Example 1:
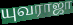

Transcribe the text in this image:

யுவராஜா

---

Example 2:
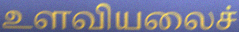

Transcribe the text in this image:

உளவியலைச்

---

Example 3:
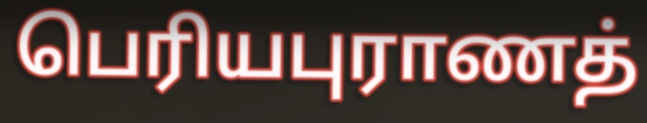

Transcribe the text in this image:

பெரியபுராணத்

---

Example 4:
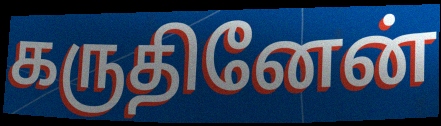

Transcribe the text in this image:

கருதினேன்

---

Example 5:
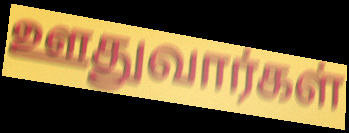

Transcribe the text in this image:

ஊதுவார்கள்